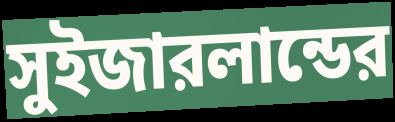
সুইজারলান্ডের